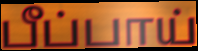
பீப்பாய்